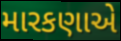
મારકણાએ